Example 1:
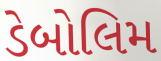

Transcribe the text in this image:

ડેબોલિમ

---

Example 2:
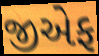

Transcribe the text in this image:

જીએફ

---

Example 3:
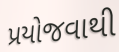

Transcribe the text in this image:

પ્રયોજવાથી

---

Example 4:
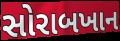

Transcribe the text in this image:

સોરાબખાન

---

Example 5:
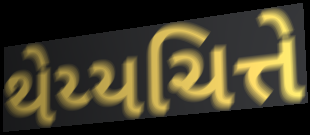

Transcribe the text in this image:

થેય્યચિત્તે